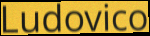
Ludovico